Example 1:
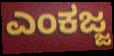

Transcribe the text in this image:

ಎಂಕಜ್ಜ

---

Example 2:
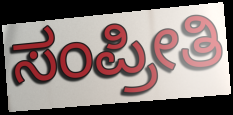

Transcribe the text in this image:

ಸಂಪ್ರೀತಿ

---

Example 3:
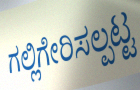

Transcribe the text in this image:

ಗಲ್ಲಿಗೇರಿಸಲ್ಪಟ್ಟ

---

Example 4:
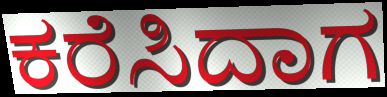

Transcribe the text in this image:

ಕರೆಸಿದಾಗ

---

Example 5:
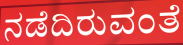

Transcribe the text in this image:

ನಡೆದಿರುವಂತೆ